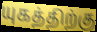
யுகத்திற்கு